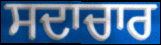
ਸਦਾਚਾਰ